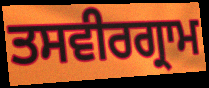
ਤਸਵੀਰਗ੍ਰਾਮ